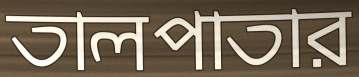
তালপাতার